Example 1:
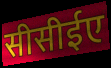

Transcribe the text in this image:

सीसीईए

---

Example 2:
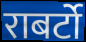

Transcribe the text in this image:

राबर्टो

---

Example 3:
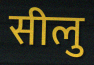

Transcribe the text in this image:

सीलु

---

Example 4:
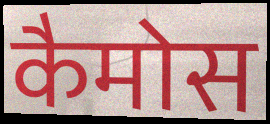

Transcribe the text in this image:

कैमोस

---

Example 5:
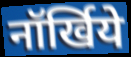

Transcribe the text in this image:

नॉर्खिये